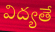
విద్యతే